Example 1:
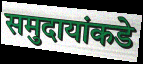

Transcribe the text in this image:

समुदायांकडे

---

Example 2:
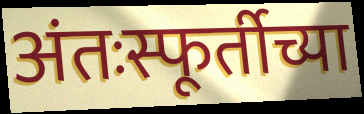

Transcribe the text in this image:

अंतःस्फूर्तीच्या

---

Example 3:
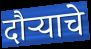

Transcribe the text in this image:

दौर्‍याचे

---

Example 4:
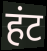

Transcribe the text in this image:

हंट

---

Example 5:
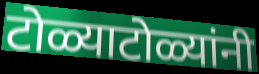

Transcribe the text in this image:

टोळ्याटोळ्यांनी